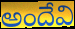
అందేవి